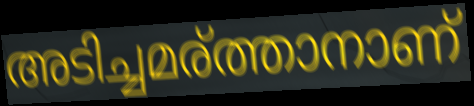
അടിച്ചമര്ത്താനാണ്